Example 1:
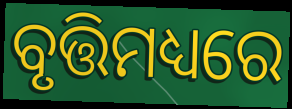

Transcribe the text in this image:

ବୃତ୍ତିମଧ୍ୟରେ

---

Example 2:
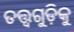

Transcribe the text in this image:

ତତ୍ତ୍ୱଗୁଡ଼ିକୁ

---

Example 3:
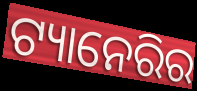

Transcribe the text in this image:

ଟ୍ୟାନେରିର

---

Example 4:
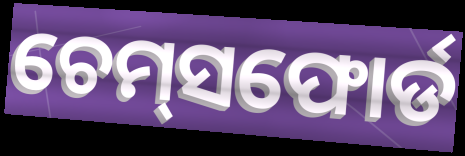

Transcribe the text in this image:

ଚେମ୍‌ସଫୋର୍ଡ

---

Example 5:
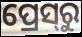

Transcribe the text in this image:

ପ୍ରେସ୍‌ରୁ